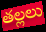
తల్లలు